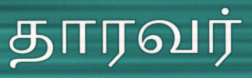
தாரவர்